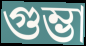
গুম্ভা